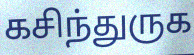
கசிந்துருக